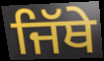
ਜਿੱਥੇ